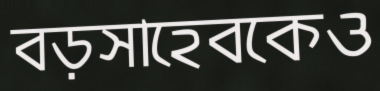
বড়সাহেবকেও